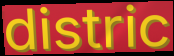
distric